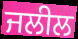
ਜਲੀਲ